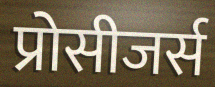
प्रोसीजर्स